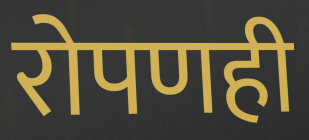
रोपणही